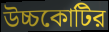
উচ্চকোটির